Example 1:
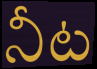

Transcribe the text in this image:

నీట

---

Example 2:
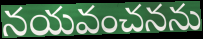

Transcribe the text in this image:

నయవంచనను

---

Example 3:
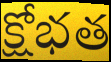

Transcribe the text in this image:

క్షోభత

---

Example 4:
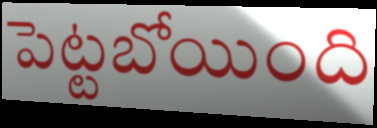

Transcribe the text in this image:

పెట్టబోయింది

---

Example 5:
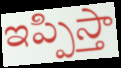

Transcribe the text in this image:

ఇప్పిస్తా